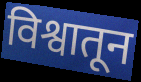
विश्वातून